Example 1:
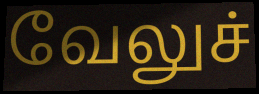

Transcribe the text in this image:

வேலுச்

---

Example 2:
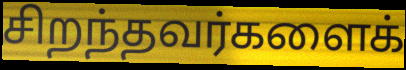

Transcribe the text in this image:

சிறந்தவர்களைக்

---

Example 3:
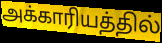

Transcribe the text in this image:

அக்காரியத்தில்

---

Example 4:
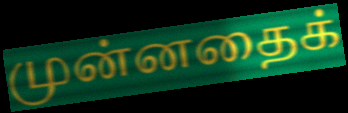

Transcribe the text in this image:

முன்னதைக்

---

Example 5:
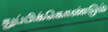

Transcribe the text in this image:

துப்பிக்கொண்டும்